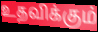
உதவிக்கும்